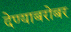
देण्याबरोबर